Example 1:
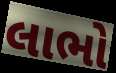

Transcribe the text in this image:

લાભો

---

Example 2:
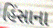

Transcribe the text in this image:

હિંસાના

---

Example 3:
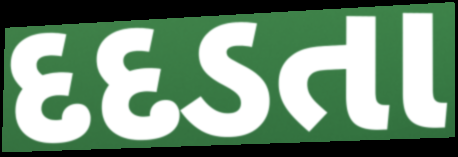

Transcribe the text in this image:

દદડતા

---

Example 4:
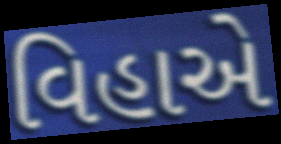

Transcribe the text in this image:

વિહાએ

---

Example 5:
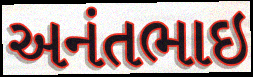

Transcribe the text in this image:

અનંતભાઇ